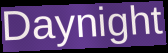
Daynight